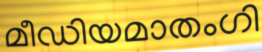
മീഡിയമാതംഗി